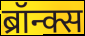
ब्रॉन्क्स